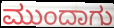
ಮುಂದಾಗು